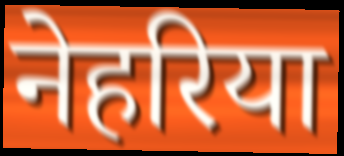
नेहरिया